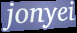
jonyei